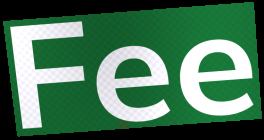
Fee